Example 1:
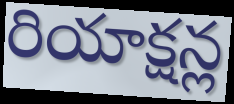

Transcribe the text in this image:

రియాక్షన్ల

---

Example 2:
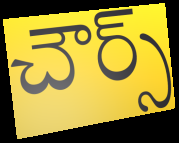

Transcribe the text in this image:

చౌర్స్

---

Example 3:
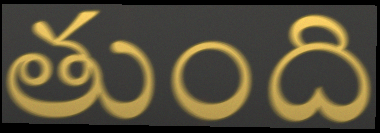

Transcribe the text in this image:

తుంది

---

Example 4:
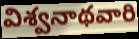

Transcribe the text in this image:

విశ్వనాథవారి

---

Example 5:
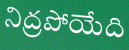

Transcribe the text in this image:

నిద్రపోయేది